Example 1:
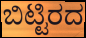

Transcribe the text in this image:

ಬಿಟ್ಟಿರದ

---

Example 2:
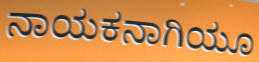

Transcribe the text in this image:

ನಾಯಕನಾಗಿಯೂ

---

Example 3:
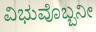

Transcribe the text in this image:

ವಿಭುವೊಬ್ಬನೀ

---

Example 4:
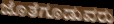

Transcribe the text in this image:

ಜೊತೆಗೂಡುವರು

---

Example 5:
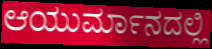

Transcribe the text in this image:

ಆಯುರ್ಮಾನದಲ್ಲಿ